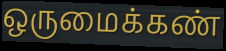
ஒருமைக்கண்